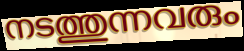
നടത്തുന്നവരും